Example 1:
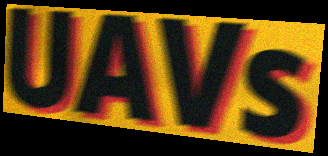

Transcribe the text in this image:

UAVs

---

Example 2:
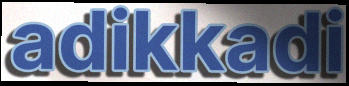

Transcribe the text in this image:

adikkadi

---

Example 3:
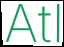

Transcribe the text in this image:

Atl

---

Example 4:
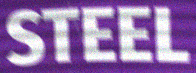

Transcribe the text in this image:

STEEL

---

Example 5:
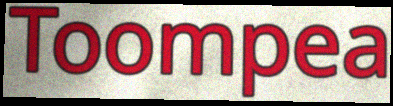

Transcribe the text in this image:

Toompea